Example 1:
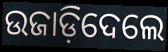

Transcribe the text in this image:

ଉଜାଡ଼ିଦେଲେ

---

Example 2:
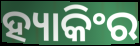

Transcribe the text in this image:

ହ୍ୟାକିଂର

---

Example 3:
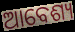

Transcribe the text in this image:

ଆବେଶ୍ୟ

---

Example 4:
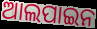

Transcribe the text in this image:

ଆଲପାଇନ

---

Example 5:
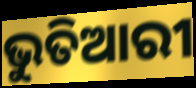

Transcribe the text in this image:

ଭୁତିଆରୀ